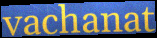
vachanat